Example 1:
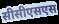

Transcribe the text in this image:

सीसीएसएस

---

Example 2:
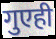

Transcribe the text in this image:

गुएही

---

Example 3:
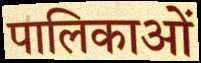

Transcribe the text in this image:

पालिकाओं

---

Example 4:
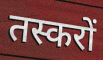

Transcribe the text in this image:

तस्करों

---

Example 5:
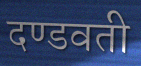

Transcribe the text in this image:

दण्डवती